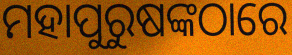
ମହାପୁରୁଷଙ୍କଠାରେ